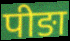
पीङा